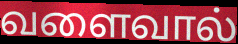
வளைவால்